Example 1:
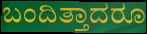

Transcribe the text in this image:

ಬಂದಿತ್ತಾದರೂ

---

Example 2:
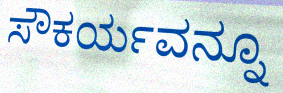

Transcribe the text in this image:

ಸೌಕರ್ಯವನ್ನೂ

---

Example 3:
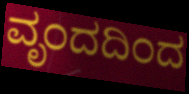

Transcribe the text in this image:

ವೃಂದದಿಂದ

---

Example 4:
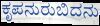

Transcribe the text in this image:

ಕೃಪನುರುಬಿದನು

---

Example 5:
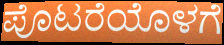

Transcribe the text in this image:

ಪೊಟರೆಯೊಳಗೆ